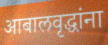
आबालवृद्धांना